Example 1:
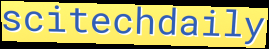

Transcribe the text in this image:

scitechdaily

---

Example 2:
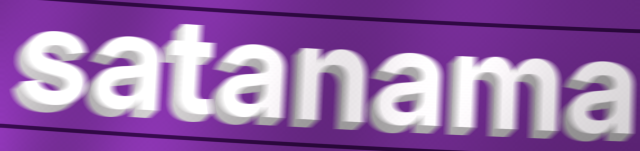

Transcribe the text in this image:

satanama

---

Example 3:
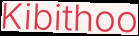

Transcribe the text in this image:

Kibithoo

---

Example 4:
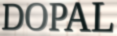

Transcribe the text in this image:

DOPAL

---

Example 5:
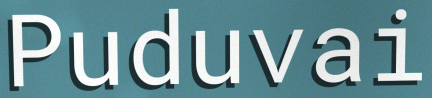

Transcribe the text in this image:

Puduvai